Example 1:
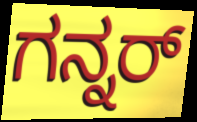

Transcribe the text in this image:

ಗನ್ನರ್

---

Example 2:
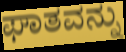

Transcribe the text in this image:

ಘಾತವನ್ನು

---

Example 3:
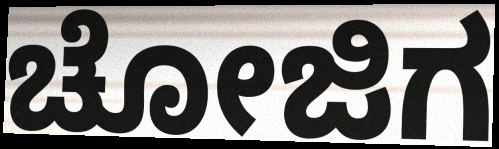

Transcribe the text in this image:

ಚೋಜಿಗ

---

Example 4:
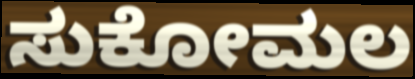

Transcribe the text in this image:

ಸುಕೋಮಲ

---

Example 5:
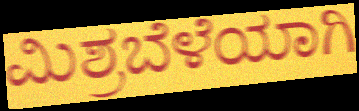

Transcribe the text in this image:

ಮಿಶ್ರಬೆಳೆಯಾಗಿ